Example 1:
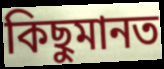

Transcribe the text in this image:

কিছুমানত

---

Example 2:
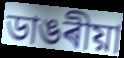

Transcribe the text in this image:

ডাঙৰীয়া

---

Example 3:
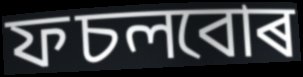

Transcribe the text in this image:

ফচলবোৰ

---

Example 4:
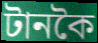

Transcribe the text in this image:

টানকৈ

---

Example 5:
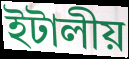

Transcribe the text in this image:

ইটালীয়